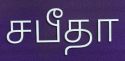
சபீதா